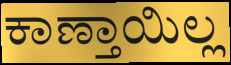
ಕಾಣ್ತಾಯಿಲ್ಲ